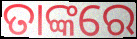
ତାଙ୍କରେ